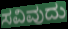
ಸವಿವುದು